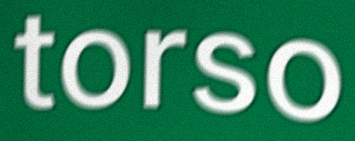
torso